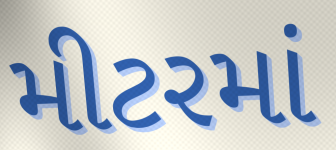
મીટરમાં